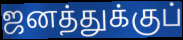
ஜனத்துக்குப்